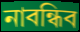
নাবন্ধিব